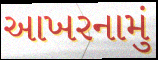
આખરનામું